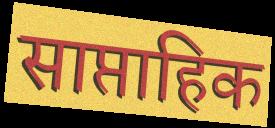
साप्ताहिक